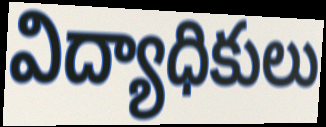
విద్యాధికులు